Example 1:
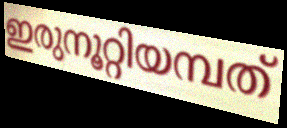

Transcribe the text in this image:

ഇരുനൂറ്റിയമ്പത്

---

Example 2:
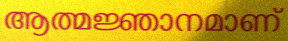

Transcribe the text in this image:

ആത്മജ്ഞാനമാണ്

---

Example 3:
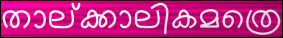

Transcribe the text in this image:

താല്ക്കാലികമത്രെ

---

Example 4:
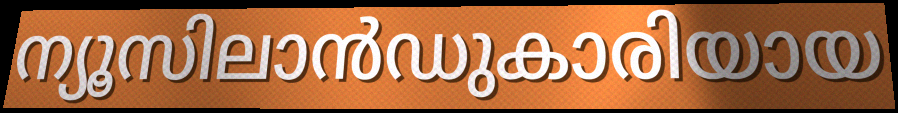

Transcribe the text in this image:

ന്യൂസിലാൻഡുകാരിയായ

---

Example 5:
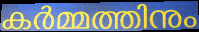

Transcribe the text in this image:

കർമ്മത്തിനും